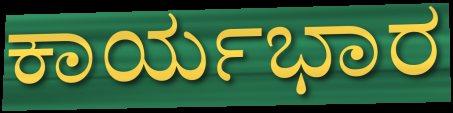
ಕಾರ್ಯಭಾರ